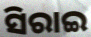
ସିରାଇ